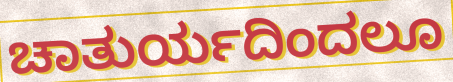
ಚಾತುರ್ಯದಿಂದಲೂ